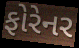
ફોરેનર